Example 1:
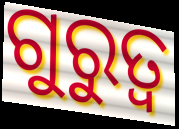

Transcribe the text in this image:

ଗୁରୁତ୍ବ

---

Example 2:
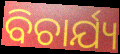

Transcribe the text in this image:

ବିଚାର୍ଯ୍ୟ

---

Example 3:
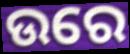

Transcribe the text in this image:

ଉରେ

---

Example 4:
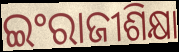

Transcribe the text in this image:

ଇଂରାଜୀଶିକ୍ଷା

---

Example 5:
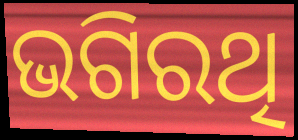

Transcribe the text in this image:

ଭଗିରଥି